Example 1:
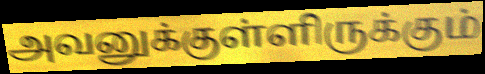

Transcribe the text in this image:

அவனுக்குள்ளிருக்கும்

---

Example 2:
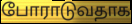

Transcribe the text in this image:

போராடுவதாக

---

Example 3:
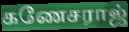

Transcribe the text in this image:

கணேசராஜ்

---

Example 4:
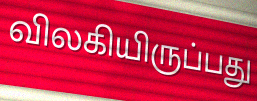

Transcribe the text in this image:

விலகியிருப்பது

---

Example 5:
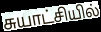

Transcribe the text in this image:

சுயாட்சியில்